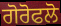
ਗੋਰੋਫਲੋ